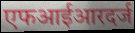
एफआईआरदर्ज